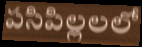
పసిపిల్లలలో